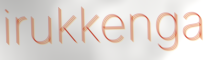
irukkenga